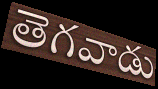
తెగవాడు